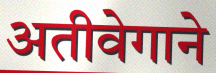
अतीवेगाने